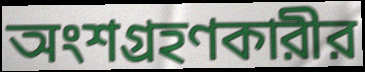
অংশগ্রহণকারীর